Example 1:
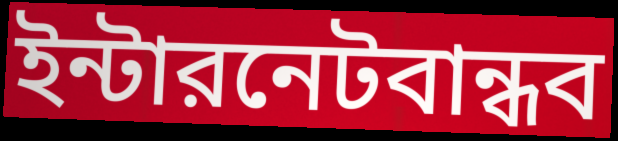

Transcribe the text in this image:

ইন্টারনেটবান্ধব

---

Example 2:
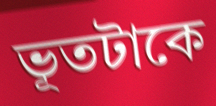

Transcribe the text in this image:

ভূতটাকে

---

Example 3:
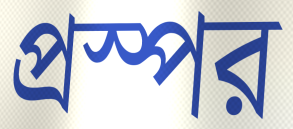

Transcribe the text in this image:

প্রস্পর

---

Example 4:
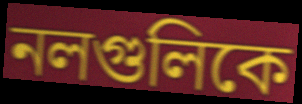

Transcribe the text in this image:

নলগুলিকে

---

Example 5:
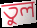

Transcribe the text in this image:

তুল